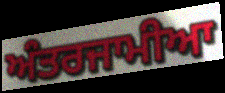
ਅੰਤਰਜਾਮੀਆ